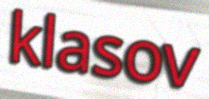
klasov